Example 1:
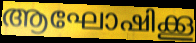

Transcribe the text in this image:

ആഘോഷിക്കൂ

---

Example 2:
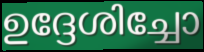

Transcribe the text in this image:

ഉദ്ദേശിച്ചോ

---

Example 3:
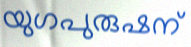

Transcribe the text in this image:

യുഗപുരുഷന്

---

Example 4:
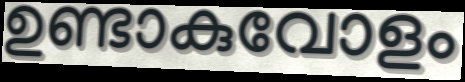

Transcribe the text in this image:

ഉണ്ടാകുവോളം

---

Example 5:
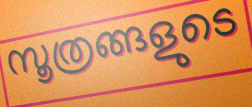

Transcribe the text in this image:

സൂത്രങ്ങളുടെ